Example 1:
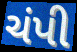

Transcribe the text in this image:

ચંપી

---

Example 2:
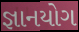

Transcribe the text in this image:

જ્ઞાનયોગ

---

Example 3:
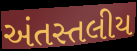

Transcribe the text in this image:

અંતસ્તલીય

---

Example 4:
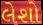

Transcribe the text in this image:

લેશો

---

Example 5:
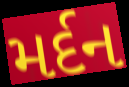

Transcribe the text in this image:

મર્દન